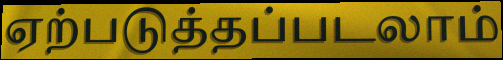
ஏற்படுத்தப்படலாம்